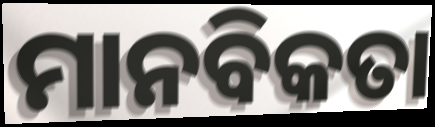
ମାନବିକତା